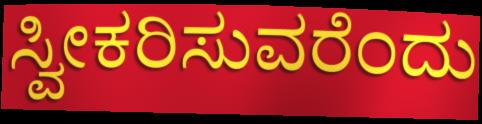
ಸ್ವೀಕರಿಸುವರೆಂದು